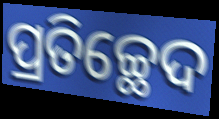
ପ୍ରତିଚ୍ଛେଦ